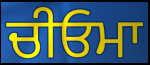
ਚੀਓਮਾ